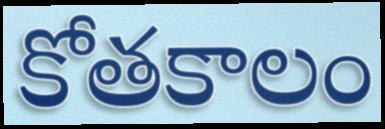
కోతకాలం